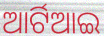
ଆର୍ଟିଆଇ